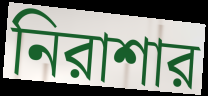
নিরাশার